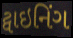
ટ્વાઇનિંગ